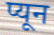
प्यून